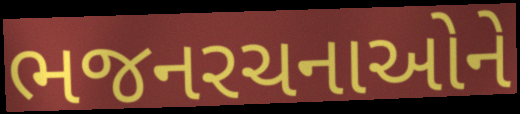
ભજનરચનાઓને